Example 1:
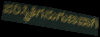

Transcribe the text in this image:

ಪರಿಸ್ಥಿತಿಗನುಗುಣವಾಗಿ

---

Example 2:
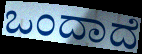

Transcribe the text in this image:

ಒಂದಾದೆ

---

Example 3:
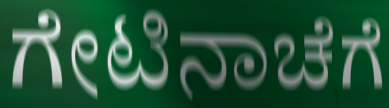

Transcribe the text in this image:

ಗೇಟಿನಾಚೆಗೆ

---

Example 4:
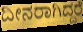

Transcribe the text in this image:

ದೀನರಾಗಿದ್ದರೆ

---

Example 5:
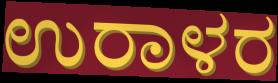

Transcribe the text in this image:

ಉರಾಳರ